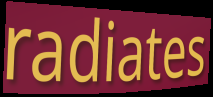
radiates